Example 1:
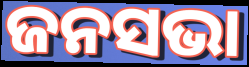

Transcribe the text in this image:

ଜନସଭା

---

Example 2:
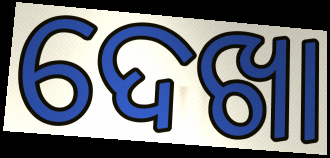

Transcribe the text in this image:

ଦେଖା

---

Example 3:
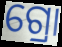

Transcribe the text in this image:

ଗ୍ରୋ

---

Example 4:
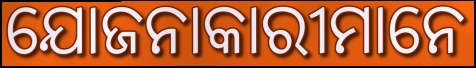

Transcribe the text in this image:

ଯୋଜନାକାରୀମାନେ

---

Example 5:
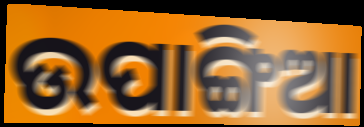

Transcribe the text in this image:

ଉପାଙ୍ଗିଆ